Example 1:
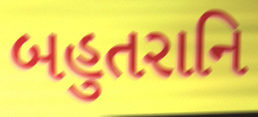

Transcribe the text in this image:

બહુતરાનિ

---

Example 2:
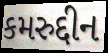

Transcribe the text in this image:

કમરુદ્દીન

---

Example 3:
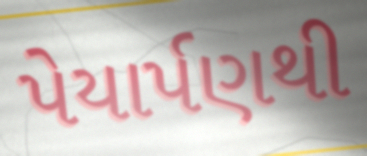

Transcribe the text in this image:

પેયાર્પણથી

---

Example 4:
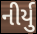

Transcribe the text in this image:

નીર્યુ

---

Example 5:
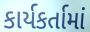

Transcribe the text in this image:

કાર્યકર્તામાં